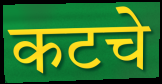
कटचे